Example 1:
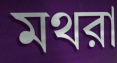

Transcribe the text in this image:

মথরা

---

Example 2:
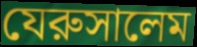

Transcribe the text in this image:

যেরুসালেম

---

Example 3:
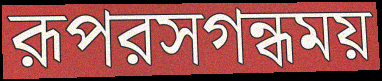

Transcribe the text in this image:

রূপরসগন্ধময়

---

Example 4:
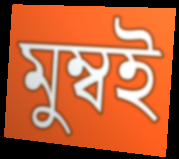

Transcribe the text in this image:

মুম্বই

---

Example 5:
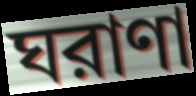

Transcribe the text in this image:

ঘরাণা